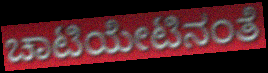
ಚಾಟಿಯೇಟಿನಂತೆ